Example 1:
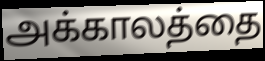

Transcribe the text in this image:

அக்காலத்தை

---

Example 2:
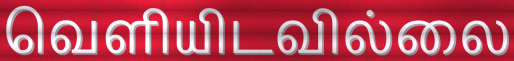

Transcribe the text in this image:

வெளியிடவில்லை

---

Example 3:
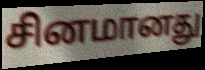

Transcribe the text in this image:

சினமானது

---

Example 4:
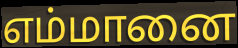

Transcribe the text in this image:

எம்மானை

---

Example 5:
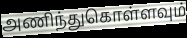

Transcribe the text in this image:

அணிந்துகொள்ளவும்